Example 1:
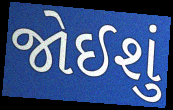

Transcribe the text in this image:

જોઈશું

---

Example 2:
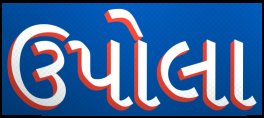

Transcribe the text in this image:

ઉપોલા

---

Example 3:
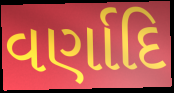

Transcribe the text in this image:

વર્ણાદિ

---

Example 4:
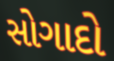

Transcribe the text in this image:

સોગાદો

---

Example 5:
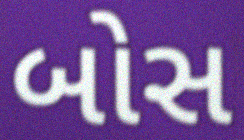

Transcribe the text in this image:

બોસ